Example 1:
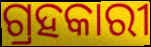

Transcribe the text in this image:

ଗ୍ରହକାରୀ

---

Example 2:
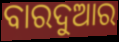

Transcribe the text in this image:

ବାରଦୁଆର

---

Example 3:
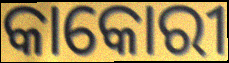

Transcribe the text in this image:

କାକୋରୀ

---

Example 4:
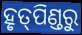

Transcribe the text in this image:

ହୃତ୍‌ପିଣ୍ଡରୁ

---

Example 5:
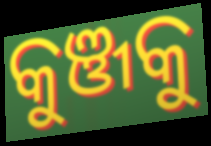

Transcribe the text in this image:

କୁଞ୍ଜକୁ